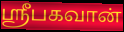
ஸ்ரீபகவான்